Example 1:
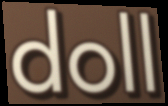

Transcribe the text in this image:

doll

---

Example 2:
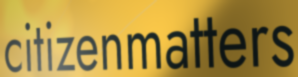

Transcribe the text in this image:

citizenmatters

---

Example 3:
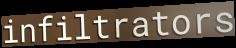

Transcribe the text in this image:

infiltrators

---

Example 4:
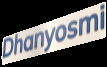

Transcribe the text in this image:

Dhanyosmi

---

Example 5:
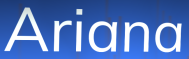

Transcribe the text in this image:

Ariana